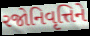
રજોનિવૃત્તિને